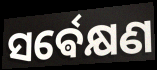
ସର୍ଵେକ୍ଷଣ